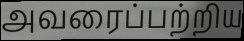
அவரைப்பற்றிய